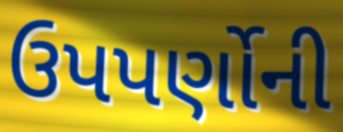
ઉપપર્ણોની